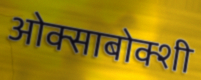
ओक्साबोक्शी